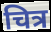
चित्र